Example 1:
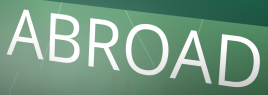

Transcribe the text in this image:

ABROAD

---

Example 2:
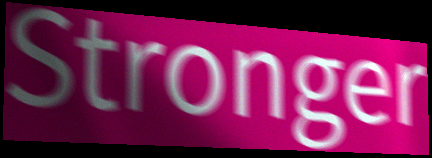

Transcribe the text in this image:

Stronger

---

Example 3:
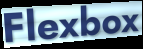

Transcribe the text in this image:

Flexbox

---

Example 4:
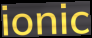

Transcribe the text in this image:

ionic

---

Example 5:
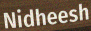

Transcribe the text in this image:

Nidheesh